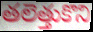
తలెత్తుకొని